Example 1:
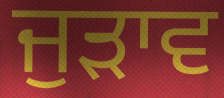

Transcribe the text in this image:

ਜੁੜਾਵ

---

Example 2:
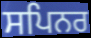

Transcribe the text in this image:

ਸਪਿਨਰ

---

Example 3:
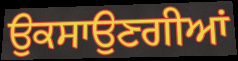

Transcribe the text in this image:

ਉਕਸਾਉਣਗੀਆਂ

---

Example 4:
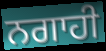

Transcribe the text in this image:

ਨਗਾਹੀ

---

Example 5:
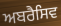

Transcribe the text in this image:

ਅਬਰੈਸਿਵ